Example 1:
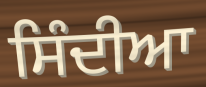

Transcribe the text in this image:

ਸਿੰਦੀਆ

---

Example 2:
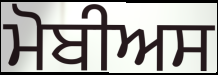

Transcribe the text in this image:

ਮੋਬੀਅਸ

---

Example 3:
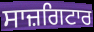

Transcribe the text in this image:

ਸਾਜ਼ਗਿਟਾਰ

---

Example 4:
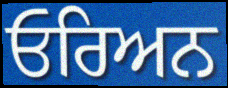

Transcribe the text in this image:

ਓਰਿਅਨ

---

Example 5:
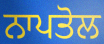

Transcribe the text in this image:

ਨਾਪਤੋਲ